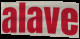
alave